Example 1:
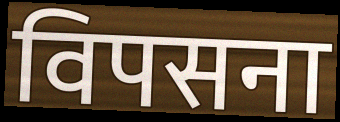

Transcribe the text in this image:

विपसना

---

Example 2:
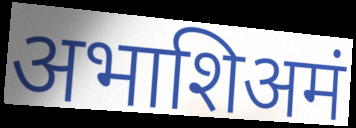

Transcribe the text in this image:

अभाशिअमं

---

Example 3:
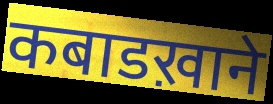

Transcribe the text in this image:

कबाडख़ाने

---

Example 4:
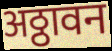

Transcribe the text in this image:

अठ्ठावन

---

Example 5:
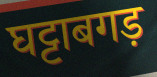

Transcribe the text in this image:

घट्टाबगड़